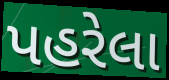
પહરેલા